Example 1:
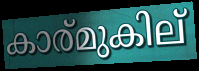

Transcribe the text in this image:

കാര്മുകില്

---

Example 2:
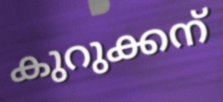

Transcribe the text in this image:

കുറുക്കന്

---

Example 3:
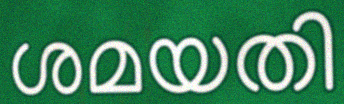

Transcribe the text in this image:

ശമയതി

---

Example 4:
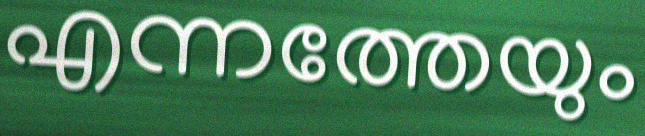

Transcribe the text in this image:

എന്നത്തേയും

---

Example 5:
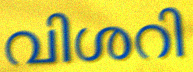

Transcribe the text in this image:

വിശറി